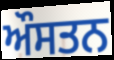
ਔਸਤਨ